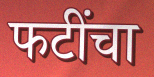
फटींचा